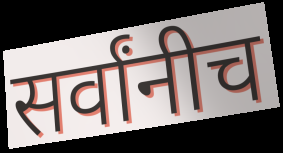
सर्वांनीच